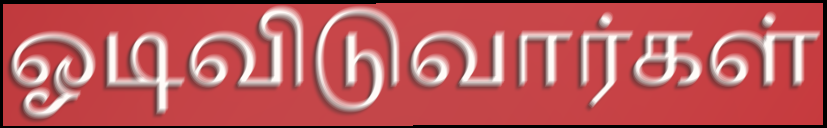
ஓடிவிடுவார்கள்